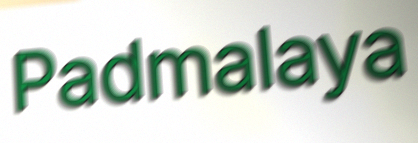
Padmalaya